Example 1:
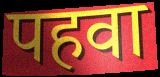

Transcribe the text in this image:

पहवा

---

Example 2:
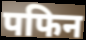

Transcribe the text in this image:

पफिन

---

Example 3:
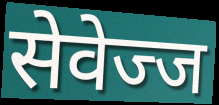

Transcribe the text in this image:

सेवेज्ज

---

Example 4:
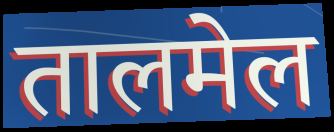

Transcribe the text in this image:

तालमेल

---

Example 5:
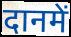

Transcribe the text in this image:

दानमें